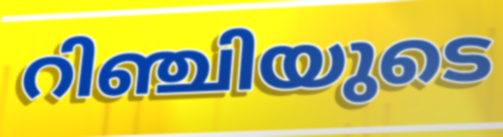
റിഞ്ചിയുടെ